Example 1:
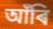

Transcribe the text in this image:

আঁৰি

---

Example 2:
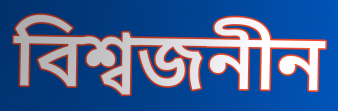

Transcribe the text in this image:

বিশ্বজনীন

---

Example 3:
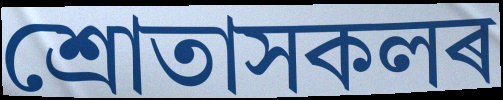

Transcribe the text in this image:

শ্ৰোতাসকলৰ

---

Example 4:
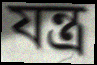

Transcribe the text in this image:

যন্ত্ৰ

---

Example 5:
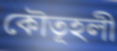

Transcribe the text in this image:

কৌতূহলী